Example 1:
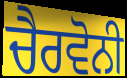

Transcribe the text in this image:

ਚੈਰਵੋਨੀ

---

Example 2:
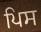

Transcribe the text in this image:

ਪਿਸ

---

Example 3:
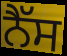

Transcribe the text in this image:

ਨੈੱਸ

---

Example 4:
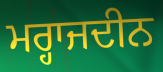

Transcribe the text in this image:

ਮਰ੍ਹਾਜਦੀਨ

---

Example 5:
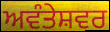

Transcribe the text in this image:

ਅਵੰਤੇਸ਼ਵਰ